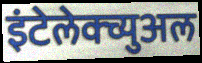
इंटेलेक्च्युअल